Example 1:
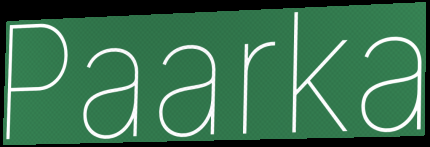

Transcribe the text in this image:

Paarka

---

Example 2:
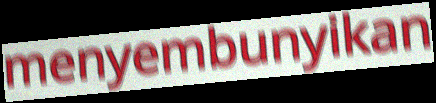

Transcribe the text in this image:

menyembunyikan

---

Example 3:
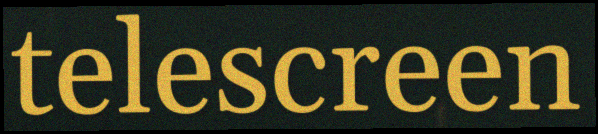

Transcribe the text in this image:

telescreen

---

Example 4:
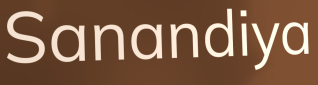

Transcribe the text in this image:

Sanandiya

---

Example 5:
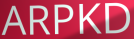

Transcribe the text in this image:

ARPKD